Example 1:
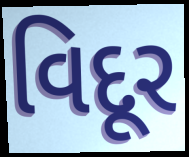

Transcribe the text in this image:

વિદૂર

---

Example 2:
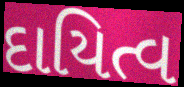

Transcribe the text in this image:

દાયિત્વ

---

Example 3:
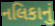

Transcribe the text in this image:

નલિકાનું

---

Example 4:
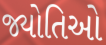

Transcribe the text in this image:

જ્યોતિઓ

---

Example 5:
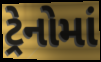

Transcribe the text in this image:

ટ્રેનોમાં